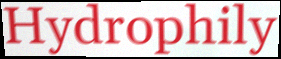
Hydrophily